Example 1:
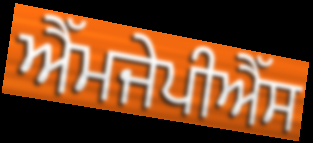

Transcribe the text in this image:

ਐੱਮਜੇਪੀਐੱਸ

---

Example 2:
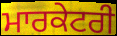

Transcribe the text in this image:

ਮਾਰਕੇਟਰੀ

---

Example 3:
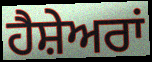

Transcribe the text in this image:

ਹੈਸ਼ੇਅਰਾਂ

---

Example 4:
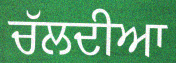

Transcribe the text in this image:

ਚੱਲਦੀਆ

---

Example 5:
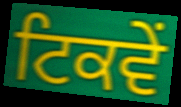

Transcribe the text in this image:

ਟਿਕਵੇਂ